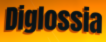
Diglossia